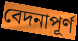
বেদনাপূর্ণ